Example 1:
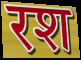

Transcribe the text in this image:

रश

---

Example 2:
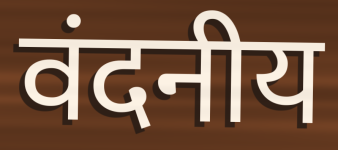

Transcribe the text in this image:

वंदनीय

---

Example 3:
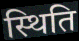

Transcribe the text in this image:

स्‍थिति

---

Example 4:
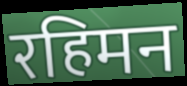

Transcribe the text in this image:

रहिमन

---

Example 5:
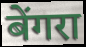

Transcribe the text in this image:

बेंगरा